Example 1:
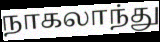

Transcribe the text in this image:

நாகலாந்து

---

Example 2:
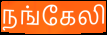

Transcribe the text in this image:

நங்கேலி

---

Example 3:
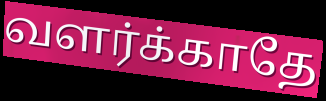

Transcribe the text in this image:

வளர்க்காதே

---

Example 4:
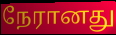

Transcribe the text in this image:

நேரானது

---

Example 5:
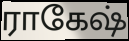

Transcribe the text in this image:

ராகேஷ்